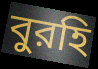
বুরহি